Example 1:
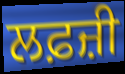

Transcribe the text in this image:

ਲਫ਼ਜ਼ੀ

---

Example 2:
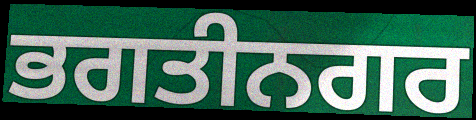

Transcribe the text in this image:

ਭਗਤੀਨਗਰ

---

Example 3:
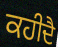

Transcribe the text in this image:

ਕਹੀਦੈ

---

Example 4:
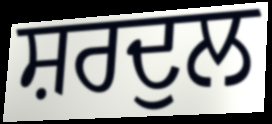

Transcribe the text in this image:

ਸ਼ਰਦੁਲ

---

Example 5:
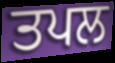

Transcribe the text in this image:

ਤਪਲ